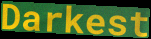
Darkest